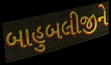
બાહુબલીજીને